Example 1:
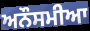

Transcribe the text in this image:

ਅਨੌਸਮੀਆ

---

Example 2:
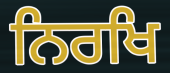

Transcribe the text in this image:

ਨਿਰਖਿ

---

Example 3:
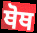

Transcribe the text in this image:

ਥੋਥ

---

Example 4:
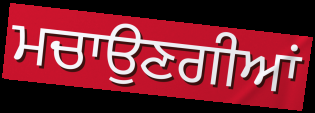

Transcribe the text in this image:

ਮਚਾਉਣਗੀਆਂ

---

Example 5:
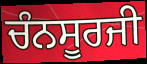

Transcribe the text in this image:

ਚੰਨਸੂਰਜੀ